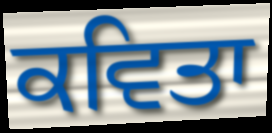
ਕਵਿਤਾ